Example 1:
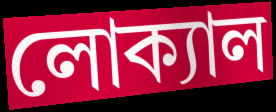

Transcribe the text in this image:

লোক্যাল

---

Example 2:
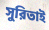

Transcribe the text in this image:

সুরিতাই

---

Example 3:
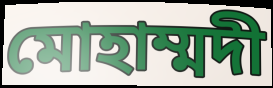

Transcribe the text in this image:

মোহাম্মদী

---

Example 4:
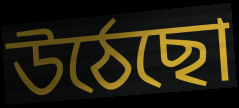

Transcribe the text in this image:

উঠেছো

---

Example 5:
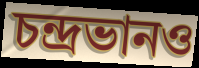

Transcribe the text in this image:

চন্দ্রভানও